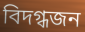
বিদগ্ধজন